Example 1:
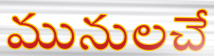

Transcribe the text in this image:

మునులచే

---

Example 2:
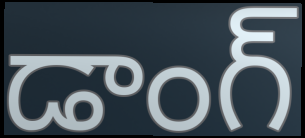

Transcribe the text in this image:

డాంగ్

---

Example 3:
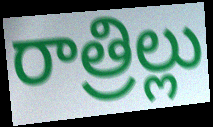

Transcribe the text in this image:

రాత్రిల్లు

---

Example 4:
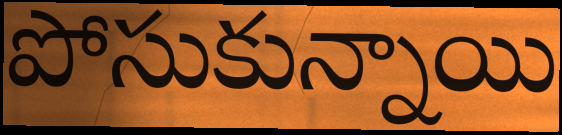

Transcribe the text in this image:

పోసుకున్నాయి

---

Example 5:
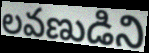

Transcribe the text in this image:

లవణుడిని